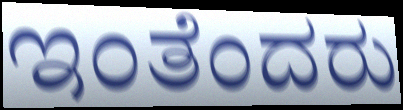
ಇಂತೆಂದರು